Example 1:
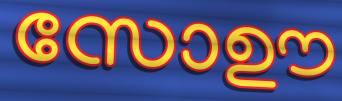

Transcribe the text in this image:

സോഊ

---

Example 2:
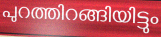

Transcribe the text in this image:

പുറത്തിറങ്ങിയിട്ടും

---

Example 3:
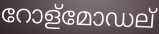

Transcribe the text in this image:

റോള്മോഡല്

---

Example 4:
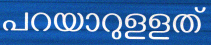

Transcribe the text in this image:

പറയാറുളളത്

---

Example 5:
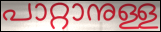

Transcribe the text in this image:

പാറ്റാനുള്ള